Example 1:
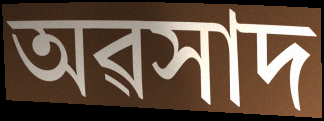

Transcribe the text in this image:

অৱসাদ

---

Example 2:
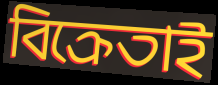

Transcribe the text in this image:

বিক্ৰেতাই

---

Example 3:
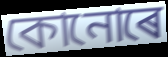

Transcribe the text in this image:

কোনোৰে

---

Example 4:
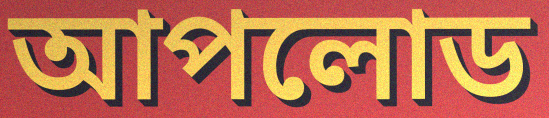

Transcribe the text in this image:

আপলোড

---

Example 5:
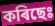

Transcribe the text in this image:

কৰিছেঃ